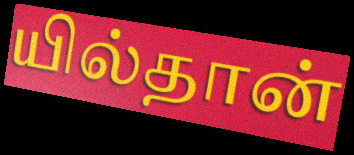
யில்தான்